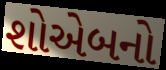
શોએબનો